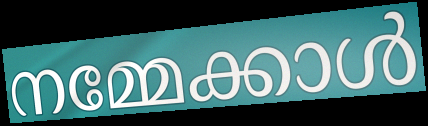
നമ്മേക്കാൾ